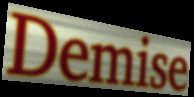
Demise